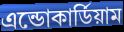
এন্ডোকার্ডিয়াম